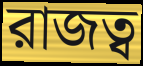
রাজত্ব